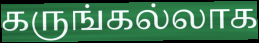
கருங்கல்லாக